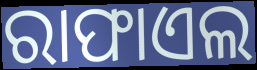
ରାଫାଏଲ